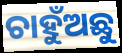
ଚାହୁଁଅଛୁ